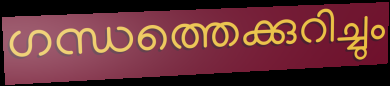
ഗന്ധത്തെക്കുറിച്ചും